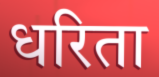
धरिता